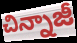
చిన్నాజీ